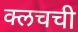
क्लचची